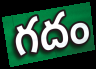
గదం